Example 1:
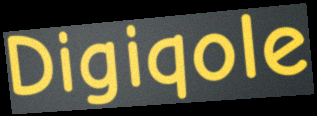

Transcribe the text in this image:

Digiqole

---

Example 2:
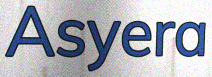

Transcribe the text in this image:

Asyera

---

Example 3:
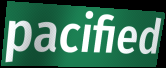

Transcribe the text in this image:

pacified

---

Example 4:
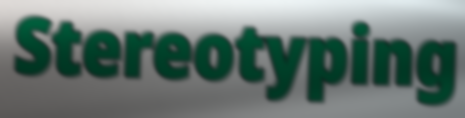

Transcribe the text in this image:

Stereotyping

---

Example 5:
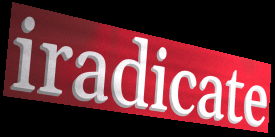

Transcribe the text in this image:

iradicate